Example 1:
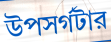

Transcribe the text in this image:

উপসর্গটার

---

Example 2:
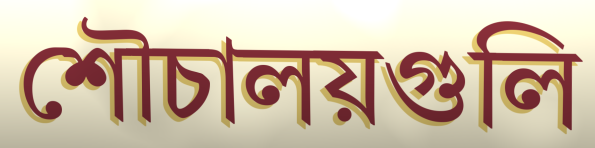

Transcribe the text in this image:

শৌচালয়গুলি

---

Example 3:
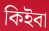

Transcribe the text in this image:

কিইবা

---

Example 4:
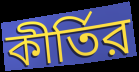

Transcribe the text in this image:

কীর্তির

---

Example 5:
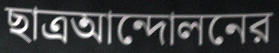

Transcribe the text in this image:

ছাত্রআন্দোলনের